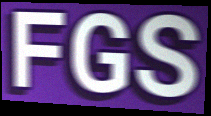
FGS